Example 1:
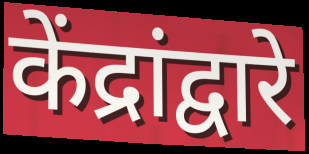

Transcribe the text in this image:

केंद्रांद्वारे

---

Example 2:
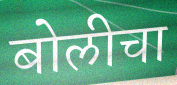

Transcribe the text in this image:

बोलीचा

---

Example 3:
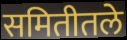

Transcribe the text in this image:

समितीतले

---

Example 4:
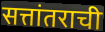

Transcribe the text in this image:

सत्तांतराची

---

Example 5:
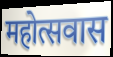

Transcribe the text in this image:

महोत्सवास